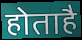
होताहै